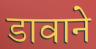
डावाने